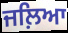
ਜਲ਼ਿਆ